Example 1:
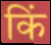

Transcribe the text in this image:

किं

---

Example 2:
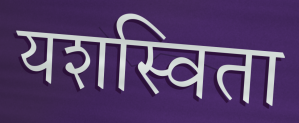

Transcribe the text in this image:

यशस्विता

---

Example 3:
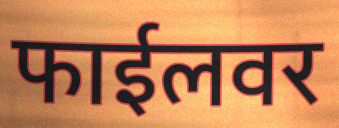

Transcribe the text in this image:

फाईलवर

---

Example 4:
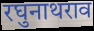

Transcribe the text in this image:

रघुनाथराव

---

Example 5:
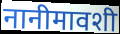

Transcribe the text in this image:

नानीमावशी